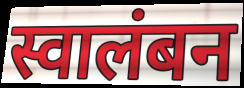
स्वालंबन